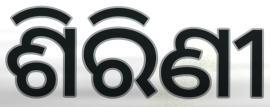
ଶିରିଣୀ